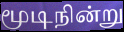
மூடிநின்று